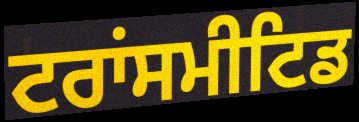
ਟਰਾਂਸਮੀਟਿਡ